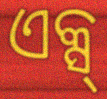
ଏକ୍ସ୍